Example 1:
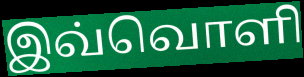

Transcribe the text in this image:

இவ்வொளி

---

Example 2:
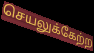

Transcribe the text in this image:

செயலுக்கேற்ற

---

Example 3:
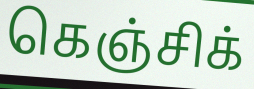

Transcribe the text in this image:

கெஞ்சிக்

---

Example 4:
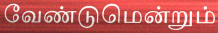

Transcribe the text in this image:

வேண்டுமென்றும்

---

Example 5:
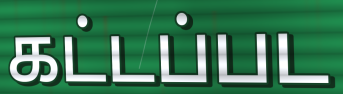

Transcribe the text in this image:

கட்டப்பட